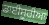
ਡਾਈਸੂਰੀਆ